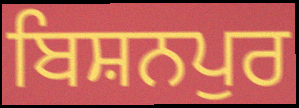
ਬਿਸ਼ਨਪੁਰ